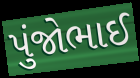
પુંજોભાઈ